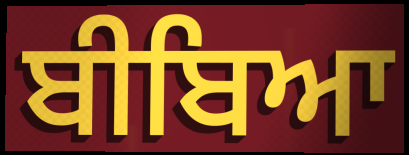
ਬੀਬਿਆ